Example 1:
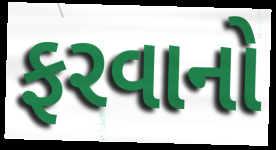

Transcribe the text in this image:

ફરવાનો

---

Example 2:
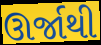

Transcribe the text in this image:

ઊર્જાથી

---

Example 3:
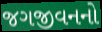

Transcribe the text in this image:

જગજીવનનો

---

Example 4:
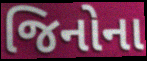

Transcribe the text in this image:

જિનોના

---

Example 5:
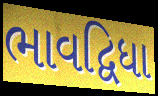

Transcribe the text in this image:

ભાવદ્વિધા